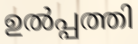
ഉൽപ്പത്തി